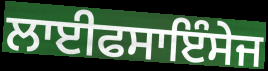
ਲਾਈਫਸਾਇੰਸੇਜ